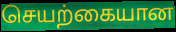
செயற்கையான